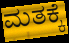
ಮತಕ್ಕೆ